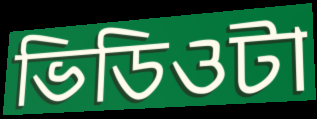
ভিডিওটা